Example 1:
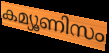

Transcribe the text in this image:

കമ്യൂണിസം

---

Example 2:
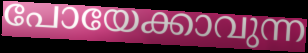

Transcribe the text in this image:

പോയേക്കാവുന്ന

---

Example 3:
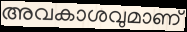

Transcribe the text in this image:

അവകാശവുമാണ്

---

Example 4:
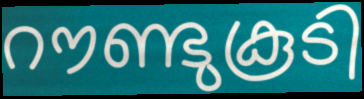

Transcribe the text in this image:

റൗണ്ടുകൂടി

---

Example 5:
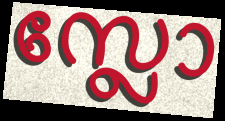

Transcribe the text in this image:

സ്ലോ